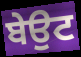
ਬੇਉਟ